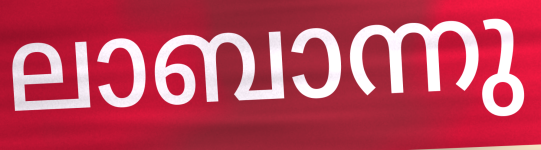
ലാബാന്നു